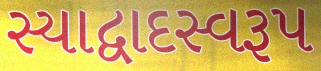
સ્યાદ્વાદસ્વરૂપ